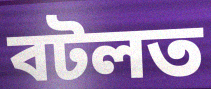
বটলত